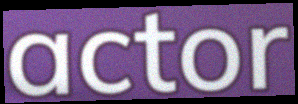
actor